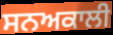
ਸਨਅਕਾਲੀ